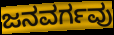
ಜನವರ್ಗವು